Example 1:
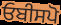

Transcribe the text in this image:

ਓਬੀਸਪੋ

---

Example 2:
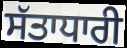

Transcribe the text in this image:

ਸੱਤਾਧਾਰੀ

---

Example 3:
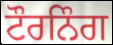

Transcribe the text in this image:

ਟੌਰਨਿੰਗ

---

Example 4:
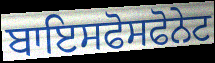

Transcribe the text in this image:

ਬਾਇਸਫੋਸਫੋਨੇਟ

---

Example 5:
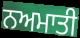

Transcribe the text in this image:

ਨਅਮਾਤੀ